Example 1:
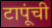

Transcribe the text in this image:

टापूंची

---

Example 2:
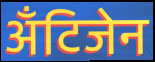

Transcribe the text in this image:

अँटिजेन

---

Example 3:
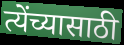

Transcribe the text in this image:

त्येंच्यासाठी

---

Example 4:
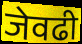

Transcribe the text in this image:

जेवढी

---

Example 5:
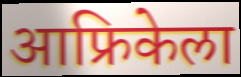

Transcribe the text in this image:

आफ्रिकेला